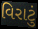
વિરાટું